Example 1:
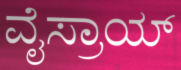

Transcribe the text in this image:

ವೈಸ್ರಾಯ್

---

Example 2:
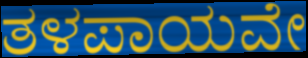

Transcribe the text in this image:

ತಳಪಾಯವೇ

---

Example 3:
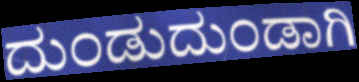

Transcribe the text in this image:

ದುಂಡುದುಂಡಾಗಿ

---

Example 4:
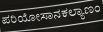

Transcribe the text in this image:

ಪರಿಯೋಸಾನಕಲ್ಯಾಣಂ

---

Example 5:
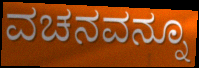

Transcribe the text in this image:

ವಚನವನ್ನೂ